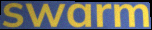
swarm